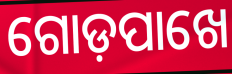
ଗୋଡ଼ପାଖେ